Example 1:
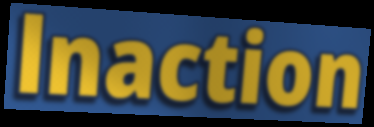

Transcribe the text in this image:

lnaction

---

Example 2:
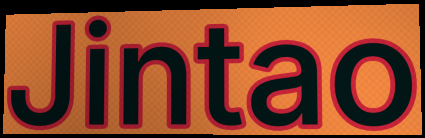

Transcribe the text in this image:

Jintao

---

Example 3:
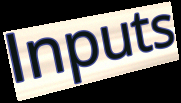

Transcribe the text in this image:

Inputs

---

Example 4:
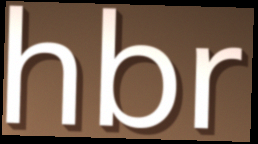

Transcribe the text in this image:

hbr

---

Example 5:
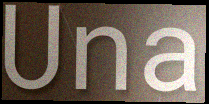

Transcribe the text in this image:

Una